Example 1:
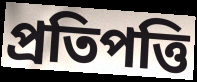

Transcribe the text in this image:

প্রতিপত্তি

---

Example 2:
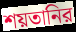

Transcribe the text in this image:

শয়তানির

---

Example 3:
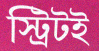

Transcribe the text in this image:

স্ট্রিটই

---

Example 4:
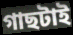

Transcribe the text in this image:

গাছটাই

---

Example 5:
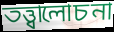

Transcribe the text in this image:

তত্ত্বালোচনা